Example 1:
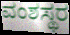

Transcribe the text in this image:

ವಂಶಸ್ಥರ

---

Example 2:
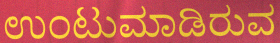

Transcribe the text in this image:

ಉಂಟುಮಾಡಿರುವ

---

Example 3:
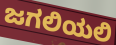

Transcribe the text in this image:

ಜಗಲಿಯಲಿ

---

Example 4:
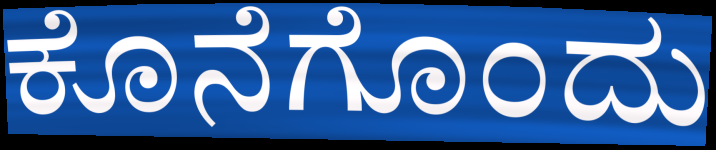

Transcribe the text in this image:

ಕೊನೆಗೊಂದು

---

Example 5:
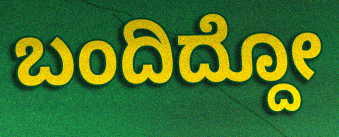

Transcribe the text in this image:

ಬಂದಿದ್ದೋ